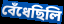
বেঁধেছিলি